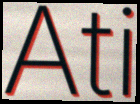
Ati